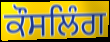
ਕੌਸਲਿੰਗ